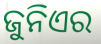
ଜୁନିଏର